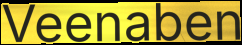
Veenaben